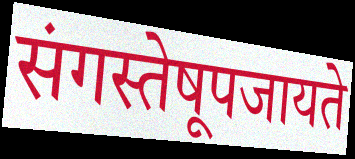
संगस्तेषूपजायते